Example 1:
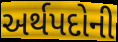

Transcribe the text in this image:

અર્થપદોની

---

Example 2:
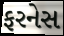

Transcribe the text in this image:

ફરનેસ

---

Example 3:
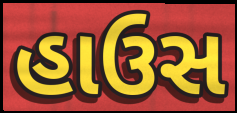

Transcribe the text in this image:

હાઉસ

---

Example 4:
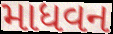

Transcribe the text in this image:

માધવન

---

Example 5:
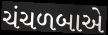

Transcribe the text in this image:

ચંચળબાએ